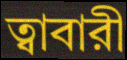
ত্বাবারী